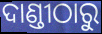
ଦାଣ୍ଡୀଠାରୁ